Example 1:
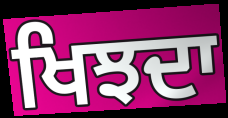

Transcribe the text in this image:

ਖਿਝਦਾ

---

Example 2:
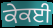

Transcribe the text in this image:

ਕੇਕਈ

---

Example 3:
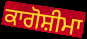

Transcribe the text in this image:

ਕਾਗੋਸ਼ੀਮਾ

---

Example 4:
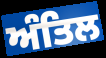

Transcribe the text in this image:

ਅੰਤਿਲ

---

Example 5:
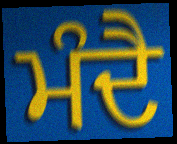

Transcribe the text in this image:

ਮੰਦੈ